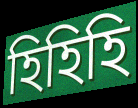
হিহিহি